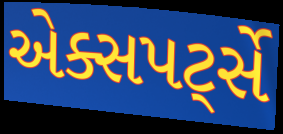
એક્સપર્ટ્સે